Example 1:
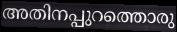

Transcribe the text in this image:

അതിനപ്പുറത്തൊരു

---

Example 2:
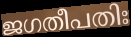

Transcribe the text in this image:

ജഗതീപതിഃ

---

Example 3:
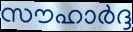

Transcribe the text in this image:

സൗഹാർദ്ദ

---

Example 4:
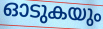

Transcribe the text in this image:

ഓടുകയും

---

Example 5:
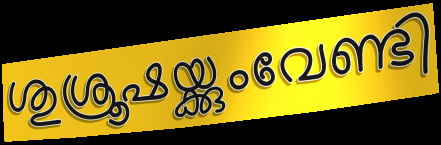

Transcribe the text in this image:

ശുശ്രൂഷയ്ക്കുംവേണ്ടി